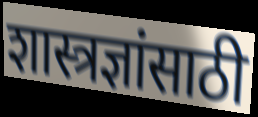
शास्त्रज्ञांसाठी